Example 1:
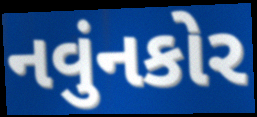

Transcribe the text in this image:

નવુંનકોર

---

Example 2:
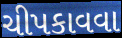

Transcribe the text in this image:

ચીપકાવવા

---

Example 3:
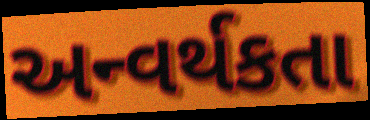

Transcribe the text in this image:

અન્વર્થકતા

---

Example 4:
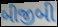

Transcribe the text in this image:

બીજીબી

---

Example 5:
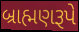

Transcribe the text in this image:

બ્રાહ્મણરૂપે